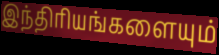
இந்திரியங்களையும்